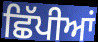
ਛਿੱਪੀਆਂ